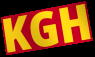
KGH